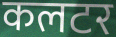
कलटर